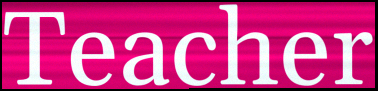
Teacher